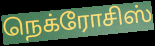
நெக்ரோசிஸ்